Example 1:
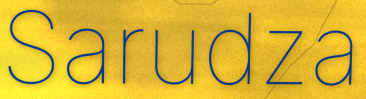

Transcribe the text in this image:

Sarudza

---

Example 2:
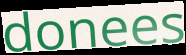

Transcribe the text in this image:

donees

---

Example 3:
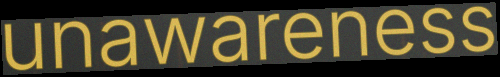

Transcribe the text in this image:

unawareness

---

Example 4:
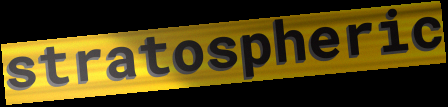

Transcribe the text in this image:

stratospheric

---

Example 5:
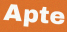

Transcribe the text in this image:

Apte